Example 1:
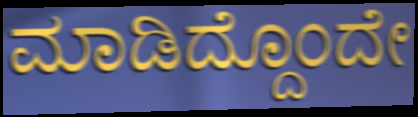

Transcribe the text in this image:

ಮಾಡಿದ್ದೊಂದೇ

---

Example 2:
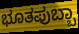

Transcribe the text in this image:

ಭೂತಪುಬ್ಬಾ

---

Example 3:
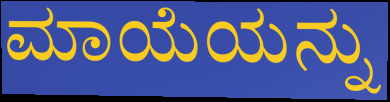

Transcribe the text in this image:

ಮಾಯೆಯನ್ನು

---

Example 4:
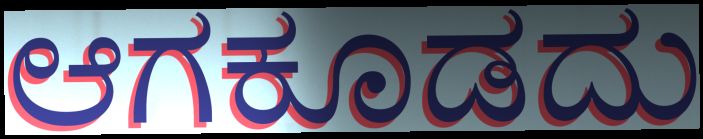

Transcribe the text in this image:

ಆಗಕೂಡದು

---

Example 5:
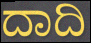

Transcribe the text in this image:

ದಾದಿ